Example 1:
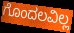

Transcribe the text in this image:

ಗೊಂದಲವಿಲ್ಲ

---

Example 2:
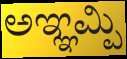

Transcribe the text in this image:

ಅಞ್ಞಮ್ಪಿ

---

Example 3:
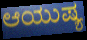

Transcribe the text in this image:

ಆಯುಷ್ಯ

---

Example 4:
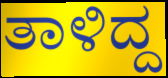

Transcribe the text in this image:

ತಾಳಿದ್ದ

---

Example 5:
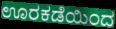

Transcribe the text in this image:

ಊರಕಡೆಯಿಂದ